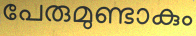
പേരുമുണ്ടാകും